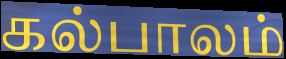
கல்பாலம்